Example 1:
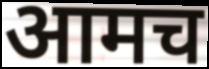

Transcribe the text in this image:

आमच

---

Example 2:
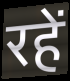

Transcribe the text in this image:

रहें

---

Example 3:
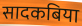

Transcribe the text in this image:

सादकबिया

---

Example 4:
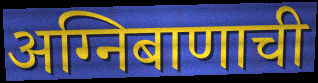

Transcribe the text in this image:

अग्निबाणाची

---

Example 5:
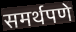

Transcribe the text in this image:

समर्थपणे